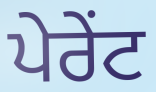
ਪੇਰੇਂਟ